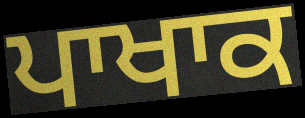
ਪਾਖਾਕ